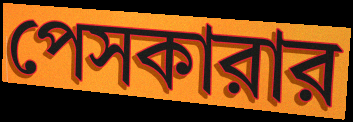
পেসকারার